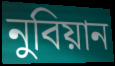
নুবিয়ান